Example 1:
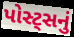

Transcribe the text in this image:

પોસ્ટ્સનું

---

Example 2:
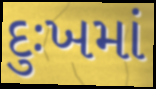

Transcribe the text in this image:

દુઃખમાં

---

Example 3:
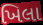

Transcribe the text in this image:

ખિલા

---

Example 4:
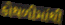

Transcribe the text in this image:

કોથળીમાંથી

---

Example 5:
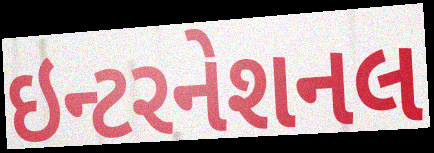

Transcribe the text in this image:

ઇન્ટરનેશનલ